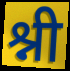
श्नी